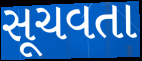
સૂચવતા